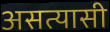
असत्यासी